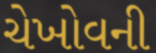
ચેખોવની